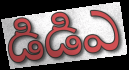
డిడిఎ